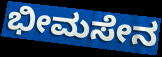
ಭೀಮಸೇನ